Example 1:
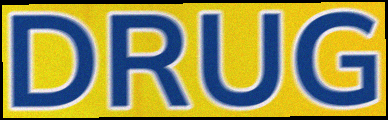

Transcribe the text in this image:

DRUG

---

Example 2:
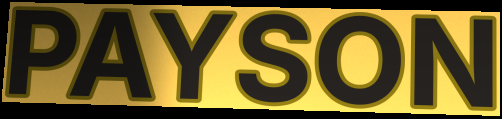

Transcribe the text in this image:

PAYSON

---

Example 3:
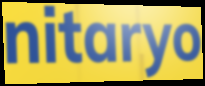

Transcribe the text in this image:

nitaryo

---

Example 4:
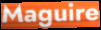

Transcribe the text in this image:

Maguire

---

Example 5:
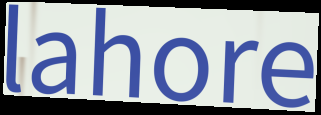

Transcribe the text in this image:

lahore